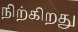
நிற்கிறது